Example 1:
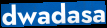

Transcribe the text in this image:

dwadasa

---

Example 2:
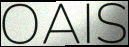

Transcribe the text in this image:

OAIS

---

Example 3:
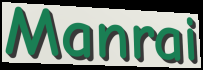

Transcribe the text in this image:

Manrai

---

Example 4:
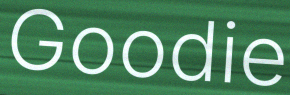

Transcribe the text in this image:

Goodie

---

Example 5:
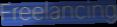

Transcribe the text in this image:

Freelancing